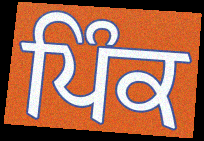
ਪਿੰਕ